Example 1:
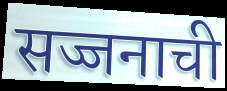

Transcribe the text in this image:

सज्जनाची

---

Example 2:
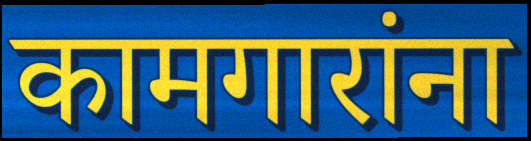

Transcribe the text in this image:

कामगारांना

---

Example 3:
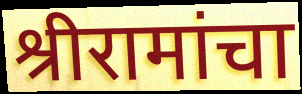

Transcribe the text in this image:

श्रीरामांचा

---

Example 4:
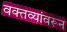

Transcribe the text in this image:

वक्तव्यांवरून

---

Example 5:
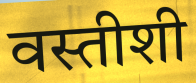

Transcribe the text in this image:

वस्‍तीशी